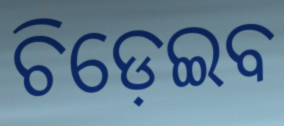
ଚିଡ଼େଇବ